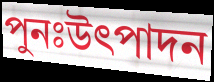
পুনঃউৎপাদন